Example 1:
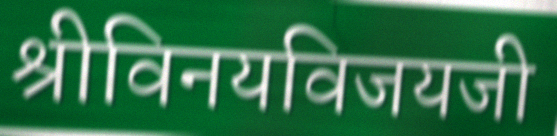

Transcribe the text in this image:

श्रीविनयविजयजी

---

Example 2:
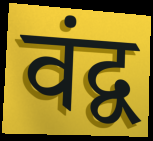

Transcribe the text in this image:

वंद्व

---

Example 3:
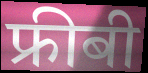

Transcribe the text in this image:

फ्रीबी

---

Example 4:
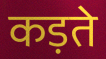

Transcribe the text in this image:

कड़ते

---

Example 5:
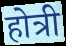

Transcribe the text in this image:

होत्री